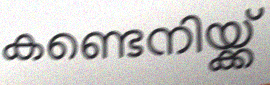
കണ്ടെനിയ്ക്ക്